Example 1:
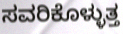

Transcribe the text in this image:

ಸವರಿಕೊಳ್ಳುತ್ತ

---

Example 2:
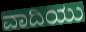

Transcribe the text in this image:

ವಾದಿಯು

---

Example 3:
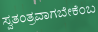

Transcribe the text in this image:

ಸ್ವತಂತ್ರವಾಗಬೇಕೆಂಬ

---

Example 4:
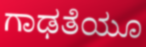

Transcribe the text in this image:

ಗಾಢತೆಯೂ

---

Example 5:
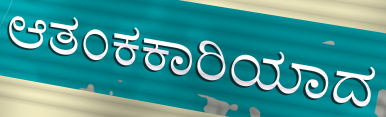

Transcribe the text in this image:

ಆತಂಕಕಾರಿಯಾದ